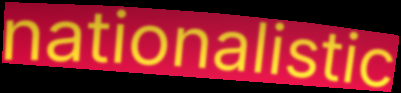
nationalistic